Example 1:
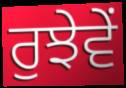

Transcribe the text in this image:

ਰੁਝੇਵੇਂ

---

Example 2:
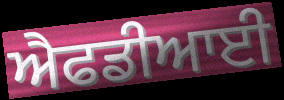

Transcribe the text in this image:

ਐਫਡੀਆਈ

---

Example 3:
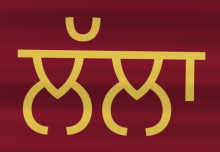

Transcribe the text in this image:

ਲੱਲਾ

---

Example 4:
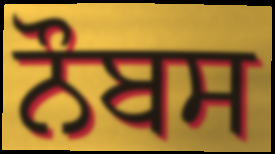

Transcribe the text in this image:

ਨੌਬਸ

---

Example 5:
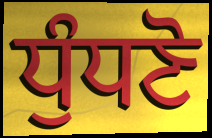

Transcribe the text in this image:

ਧੁੰਧਣੋ